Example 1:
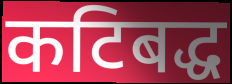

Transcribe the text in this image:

कटिबद्ध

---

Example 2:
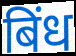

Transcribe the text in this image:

बिंध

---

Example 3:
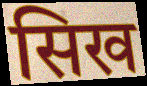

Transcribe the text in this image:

सिख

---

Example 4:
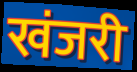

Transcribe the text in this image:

खंजरी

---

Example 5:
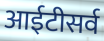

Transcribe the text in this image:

आईटीसर्व